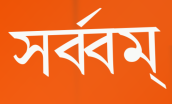
সৰ্ব্বম্